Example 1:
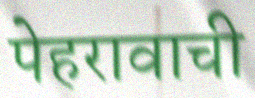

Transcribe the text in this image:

पेहरावाची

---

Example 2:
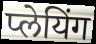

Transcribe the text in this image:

प्लेयिंग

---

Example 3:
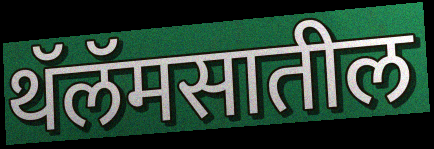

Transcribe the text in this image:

थॅलॅमसातील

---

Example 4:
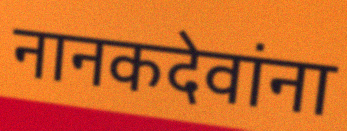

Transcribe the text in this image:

नानकदेवांना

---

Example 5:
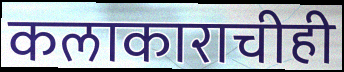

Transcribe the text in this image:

कलाकाराचीही